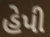
હેપી